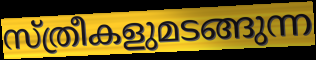
സ്ത്രീകളുമടങ്ങുന്ന